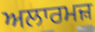
ਅਲਾਰਮਜ਼